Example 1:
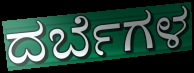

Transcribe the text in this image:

ದರ್ಬೆಗಳ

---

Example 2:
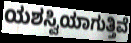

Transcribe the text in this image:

ಯಶಸ್ವಿಯಾಗುತ್ತಿವೆ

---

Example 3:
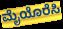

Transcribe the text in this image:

ಮೈಯೊರೆಸಿ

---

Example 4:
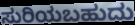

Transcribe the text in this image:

ಸುರಿಯಬಹುದು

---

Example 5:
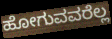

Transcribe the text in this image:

ಹೋಗುವವರೆಲ್ಲ